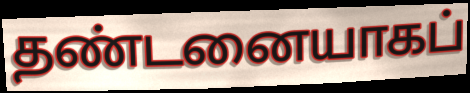
தண்டனையாகப்